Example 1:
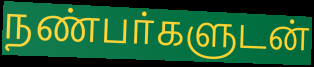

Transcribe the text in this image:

நண்பர்களுடன்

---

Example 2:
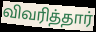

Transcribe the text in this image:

விவரித்தார்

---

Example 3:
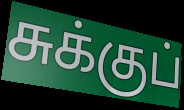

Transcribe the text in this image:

சுக்குப்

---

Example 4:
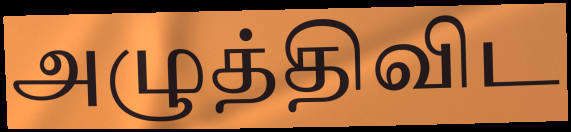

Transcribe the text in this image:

அழுத்திவிட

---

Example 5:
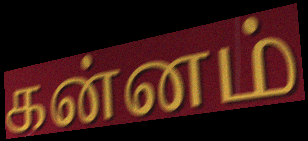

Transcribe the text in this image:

கன்னம்